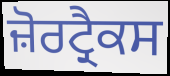
ਜ਼ੋਰਟ੍ਰੈਕਸ